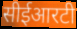
सीईआरटी